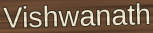
Vishwanath